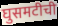
घुसमटीची